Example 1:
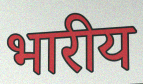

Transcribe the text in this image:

भारीय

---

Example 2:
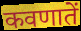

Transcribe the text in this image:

कवणातें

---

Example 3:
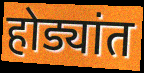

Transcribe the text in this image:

होड्यांत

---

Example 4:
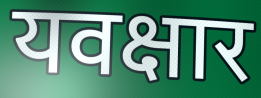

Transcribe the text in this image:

यवक्षार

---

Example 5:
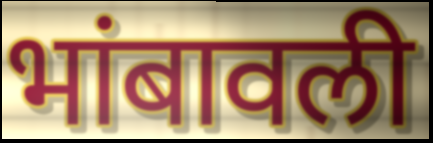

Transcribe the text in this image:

भांबावली